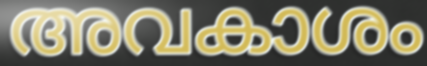
അവകാശം